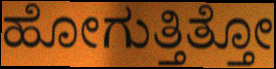
ಹೋಗುತ್ತಿತ್ತೋ